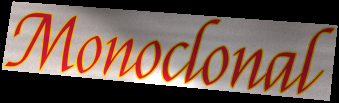
Monoclonal